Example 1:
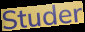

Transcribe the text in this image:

Studer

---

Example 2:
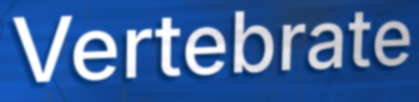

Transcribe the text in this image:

Vertebrate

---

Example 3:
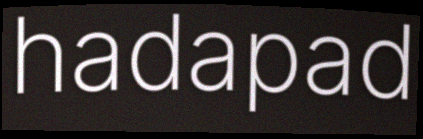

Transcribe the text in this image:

hadapad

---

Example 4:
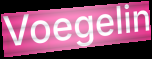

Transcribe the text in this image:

Voegelin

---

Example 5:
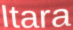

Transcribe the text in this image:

Itara